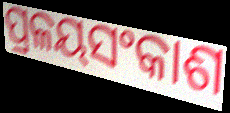
ପ୍ରଳୟସଂକାଶ